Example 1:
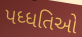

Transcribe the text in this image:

પધ્ધતિઓ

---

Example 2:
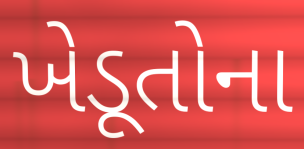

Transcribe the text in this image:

ખેડૂતોના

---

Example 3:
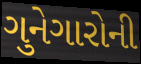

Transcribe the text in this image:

ગુનેગારોની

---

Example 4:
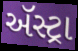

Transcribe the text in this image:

ઍસ્ટ્રા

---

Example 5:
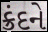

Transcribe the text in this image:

ક્રંદને